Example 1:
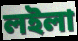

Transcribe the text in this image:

লইলা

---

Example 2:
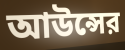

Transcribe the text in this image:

আউন্সের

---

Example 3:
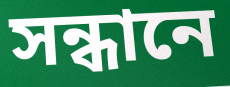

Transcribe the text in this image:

সন্ধানে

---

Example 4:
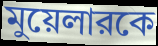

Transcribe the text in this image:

মুয়েলারকে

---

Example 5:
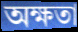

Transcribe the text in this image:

অক্ষতা